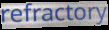
refractory